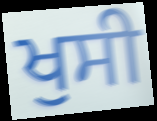
ਖੁਸੀ